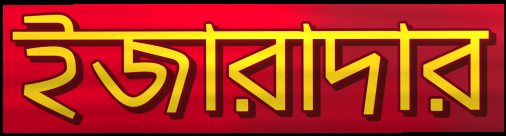
ইজারাদার